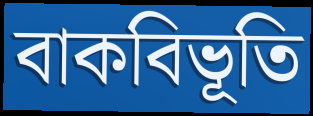
বাকবিভূতি